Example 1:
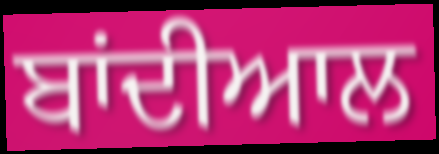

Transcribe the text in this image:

ਬਾਂਦੀਆਲ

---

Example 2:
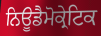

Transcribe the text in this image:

ਨਿਊਡੈਮੋਕ੍ਰੇਟਿਕ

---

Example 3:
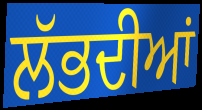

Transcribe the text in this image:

ਲੱਭਦੀਆਂ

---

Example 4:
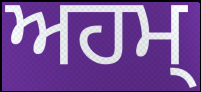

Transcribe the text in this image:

ਅਹਮ੍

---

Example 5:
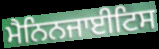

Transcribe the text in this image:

ਮੈਨਿਨਜਾਈਟਿਸ